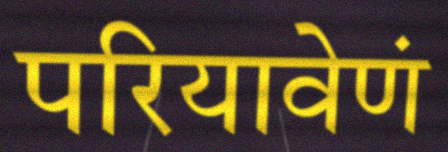
परियावेणं